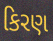
કિરણ